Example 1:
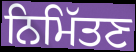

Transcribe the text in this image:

ਨਿਮਿੱਤਣ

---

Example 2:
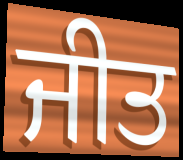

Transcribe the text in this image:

ਜੀਤ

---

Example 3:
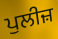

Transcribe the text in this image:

ਪੁਲੀਜ਼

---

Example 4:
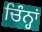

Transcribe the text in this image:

ਚਿੰਨ੍ਹਾਂ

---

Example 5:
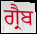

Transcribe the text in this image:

ਗ੍ਰੈਬ